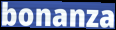
bonanza